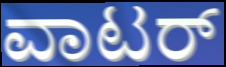
ವಾಟರ್